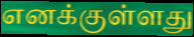
எனக்குள்ளது